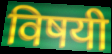
विषयी